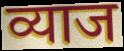
व्याज